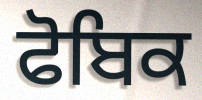
ਫੋਬਿਕ